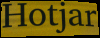
Hotjar